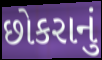
છોકરાનું